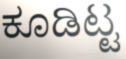
ಕೂಡಿಟ್ಟ